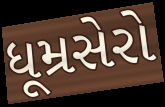
ધૂમ્રસેરો